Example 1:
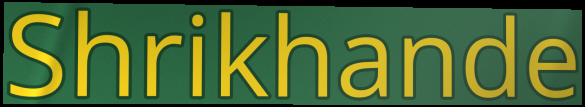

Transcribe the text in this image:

Shrikhande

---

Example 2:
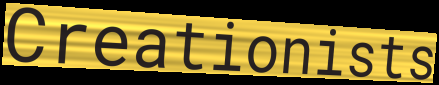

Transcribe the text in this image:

Creationists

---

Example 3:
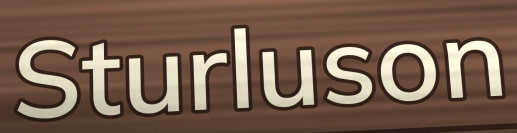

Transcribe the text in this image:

Sturluson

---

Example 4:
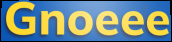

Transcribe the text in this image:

Gnoeee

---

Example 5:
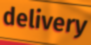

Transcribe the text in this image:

delivery